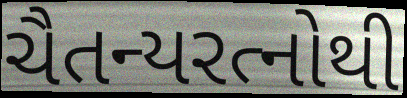
ચૈતન્યરત્નોથી